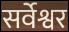
सर्वेश्वर